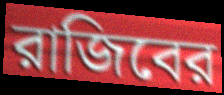
রাজিবের